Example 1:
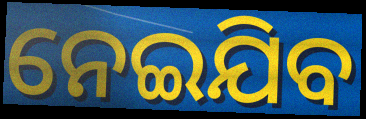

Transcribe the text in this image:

ନେଇଯିବ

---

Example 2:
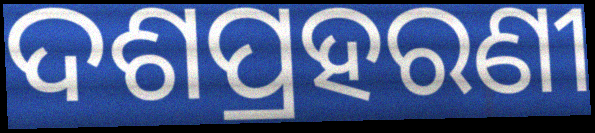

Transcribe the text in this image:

ଦଶପ୍ରହରଣୀ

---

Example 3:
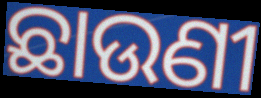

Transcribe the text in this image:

ଛାଉଣୀ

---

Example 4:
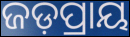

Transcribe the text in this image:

ଜଡ଼ପ୍ରାୟ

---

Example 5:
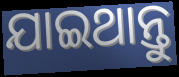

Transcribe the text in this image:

ଯାଇଥାନ୍ତୁ